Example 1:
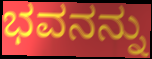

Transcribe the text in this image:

ಭವನನ್ನು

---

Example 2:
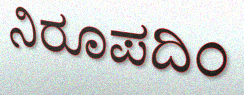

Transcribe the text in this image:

ನಿರೂಪದಿಂ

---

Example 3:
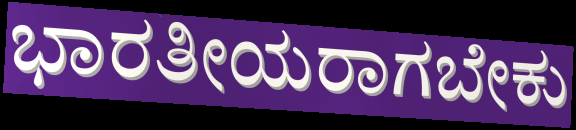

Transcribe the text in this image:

ಭಾರತೀಯರಾಗಬೇಕು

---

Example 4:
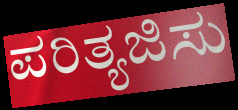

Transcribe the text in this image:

ಪರಿತ್ಯಜಿಸು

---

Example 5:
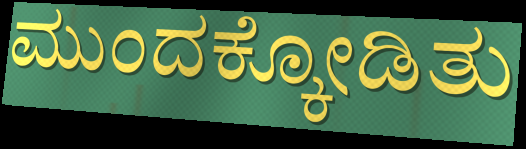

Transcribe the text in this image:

ಮುಂದಕ್ಕೋಡಿತು